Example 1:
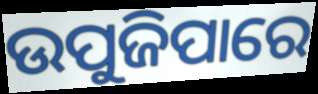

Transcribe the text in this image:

ଉପୁଜିପାରେ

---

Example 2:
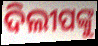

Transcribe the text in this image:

ଦିଲୀପଙ୍କୁ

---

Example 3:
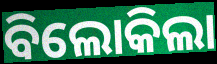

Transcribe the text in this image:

ବିଲୋକିଲା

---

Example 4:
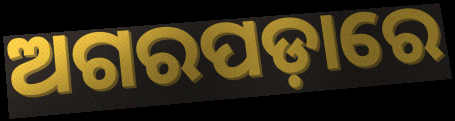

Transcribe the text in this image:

ଅଗରପଡ଼ାରେ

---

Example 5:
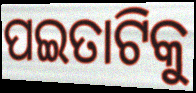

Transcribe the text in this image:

ପଇତାଟିକୁ